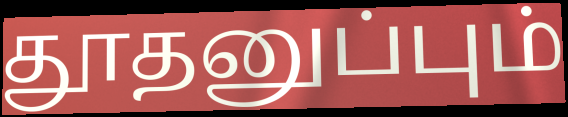
தூதனுப்பும்